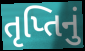
તૃપ્તિનું